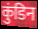
कुंडिन